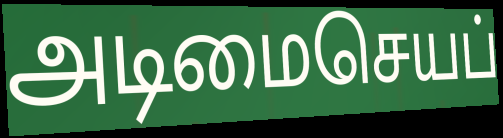
அடிமைசெயப்